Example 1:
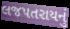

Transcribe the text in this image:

લજપતરાયનું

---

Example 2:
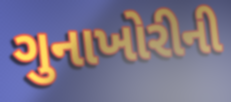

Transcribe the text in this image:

ગુનાખોરીની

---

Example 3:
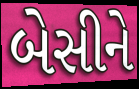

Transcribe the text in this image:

બેસીને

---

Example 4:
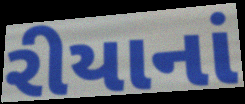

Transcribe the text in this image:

રીયાનાં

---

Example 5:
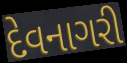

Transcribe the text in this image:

દેવનાગરી